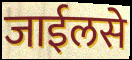
जाईलसे